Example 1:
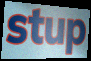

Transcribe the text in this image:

stup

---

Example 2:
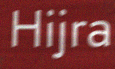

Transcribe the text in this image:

Hijra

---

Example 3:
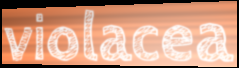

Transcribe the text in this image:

violacea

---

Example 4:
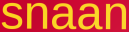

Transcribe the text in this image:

snaan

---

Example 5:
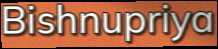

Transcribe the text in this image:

Bishnupriya